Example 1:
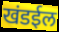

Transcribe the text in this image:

खंडईल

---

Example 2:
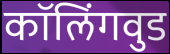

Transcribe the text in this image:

कॉलिंगवुड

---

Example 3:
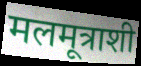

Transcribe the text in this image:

मलमूत्राशी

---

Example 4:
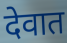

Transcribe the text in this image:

देवात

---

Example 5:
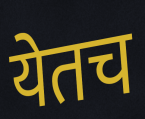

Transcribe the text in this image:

येतच